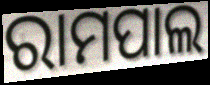
ରାମପାଲ